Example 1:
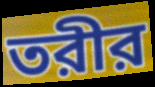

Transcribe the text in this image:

তরীর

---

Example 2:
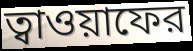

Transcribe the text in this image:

ত্বাওয়াফের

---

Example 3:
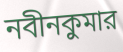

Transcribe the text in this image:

নবীনকুমার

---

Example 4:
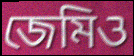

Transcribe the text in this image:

জেমিও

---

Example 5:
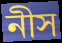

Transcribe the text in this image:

নীস